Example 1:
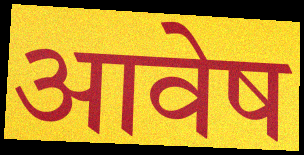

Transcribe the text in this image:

आवेष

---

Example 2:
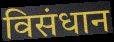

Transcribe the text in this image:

विसंधान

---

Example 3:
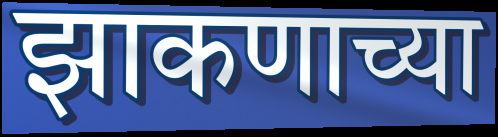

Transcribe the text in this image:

झाकणाच्या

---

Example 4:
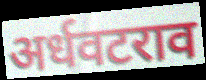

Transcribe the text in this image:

अर्धवटराव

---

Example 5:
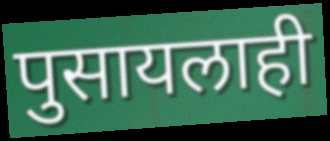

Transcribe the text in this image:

पुसायलाही